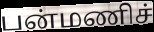
பன்மணிச்